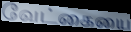
வேட்கையை